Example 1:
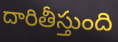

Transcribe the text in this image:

దారితీస్తుంది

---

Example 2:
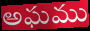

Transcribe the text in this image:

అఘము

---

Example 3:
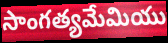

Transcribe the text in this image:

సాంగత్యమేమియు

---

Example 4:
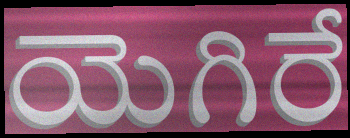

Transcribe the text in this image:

యెగిరే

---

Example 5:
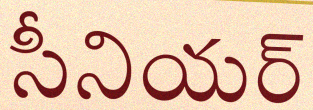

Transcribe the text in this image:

సీనియర్